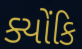
ક્યોંકિ